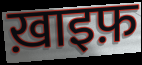
ख़ाइफ़